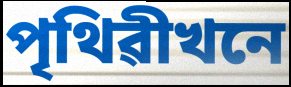
পৃথিৱীখনে